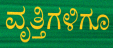
ವೃತ್ತಿಗಳಿಗೂ